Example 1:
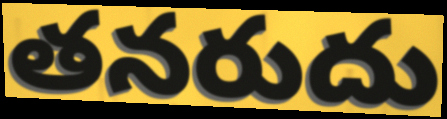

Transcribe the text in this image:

తనరుదు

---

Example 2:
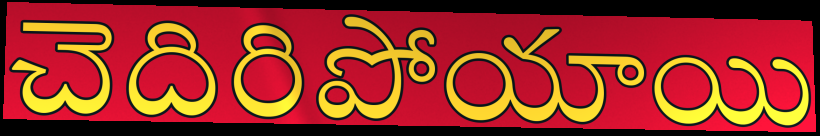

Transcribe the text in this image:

చెదిరిపోయాయి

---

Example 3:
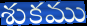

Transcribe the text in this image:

శుకము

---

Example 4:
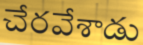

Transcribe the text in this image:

చేరవేశాడు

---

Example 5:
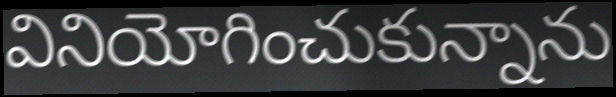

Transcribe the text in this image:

వినియోగించుకున్నాను